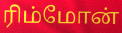
ரிம்மோன்